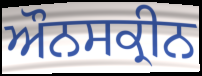
ਔਨਸਕ੍ਰੀਨ